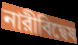
নারীবিদ্বেষ